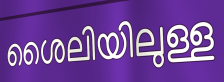
ശൈലിയിലുള്ള